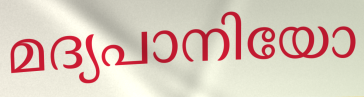
മദ്യപാനിയോ